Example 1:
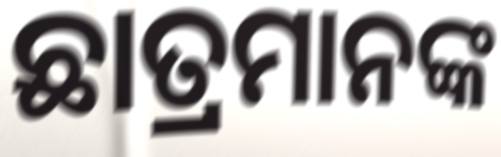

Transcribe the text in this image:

ଛାତ୍ରମାନଙ୍କ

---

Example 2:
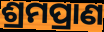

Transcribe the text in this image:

ଶ୍ରମପ୍ରାଣ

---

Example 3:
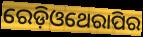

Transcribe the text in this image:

ରେଡ଼ିଓଥେରାପିର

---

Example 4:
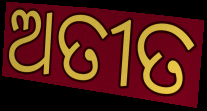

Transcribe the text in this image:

ଅତୀତ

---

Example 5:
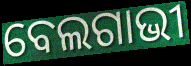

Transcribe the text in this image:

ବେଲଗାଭୀ